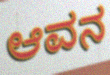
ಆವನ